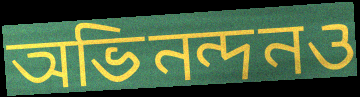
অভিনন্দনও